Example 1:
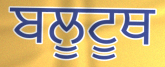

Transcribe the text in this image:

ਬਲੂਟੂਥ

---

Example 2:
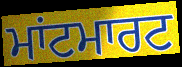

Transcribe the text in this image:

ਮਾਂਟਮਾਰਟ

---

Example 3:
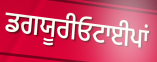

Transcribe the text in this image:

ਡਗਯੂਰੀਓਟਾਈਪਾਂ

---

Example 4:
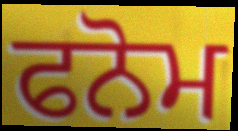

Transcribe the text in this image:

ਫਨੋਮ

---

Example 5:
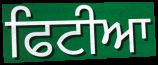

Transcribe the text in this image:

ਫਿਟੀਆ